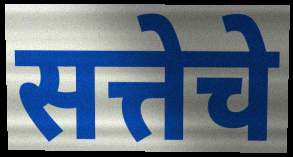
सत्तेचे